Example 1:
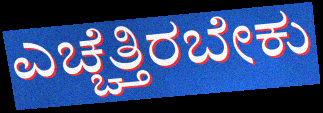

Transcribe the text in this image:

ಎಚ್ಚೆತ್ತಿರಬೇಕು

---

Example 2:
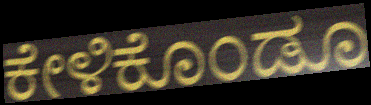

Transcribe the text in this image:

ಕೇಳಿಕೊಂಡೂ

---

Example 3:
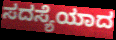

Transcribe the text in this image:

ಸದಸ್ಯೆಯಾದ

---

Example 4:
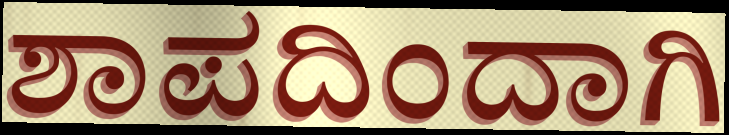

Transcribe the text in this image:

ಶಾಪದಿಂದಾಗಿ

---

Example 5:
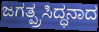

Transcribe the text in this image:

ಜಗತ್ಪ್ರಸಿದ್ಧನಾದ